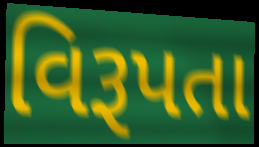
વિરૂપતા